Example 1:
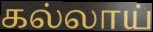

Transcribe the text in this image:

கல்லாய்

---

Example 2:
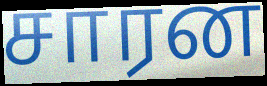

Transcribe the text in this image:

சாரன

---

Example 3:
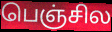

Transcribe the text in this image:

பெஞ்சில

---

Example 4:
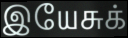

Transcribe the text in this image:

இயேசுக்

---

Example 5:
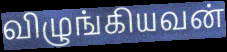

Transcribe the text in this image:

விழுங்கியவன்